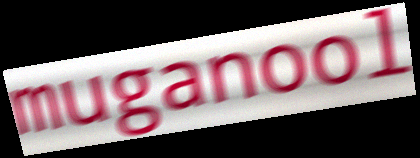
muganool